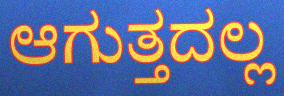
ಆಗುತ್ತದಲ್ಲ